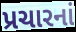
પ્રચારનાં